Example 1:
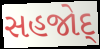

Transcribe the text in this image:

સહજોદ્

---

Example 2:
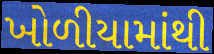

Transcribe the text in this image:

ખોળીયામાંથી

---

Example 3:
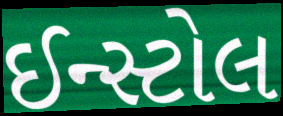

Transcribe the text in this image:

ઈન્સ્ટોલ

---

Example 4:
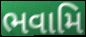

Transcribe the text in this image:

ભવામિ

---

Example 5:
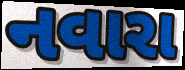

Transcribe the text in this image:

નવારા